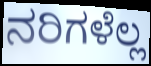
ನರಿಗಳೆಲ್ಲ